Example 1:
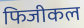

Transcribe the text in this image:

फिजीकल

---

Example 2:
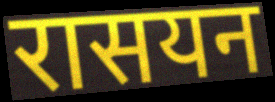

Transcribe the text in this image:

रासयन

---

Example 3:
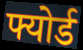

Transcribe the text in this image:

फ्योर्ड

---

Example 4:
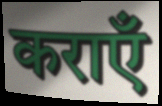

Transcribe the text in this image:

कराएँ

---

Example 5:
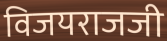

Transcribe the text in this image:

विजयराजजी